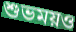
শুভময়ও